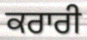
ਕਰਾਰੀ